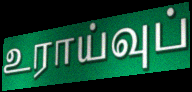
உராய்வுப்